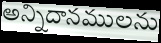
అన్నిదానములను